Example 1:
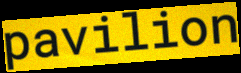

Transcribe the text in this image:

pavilion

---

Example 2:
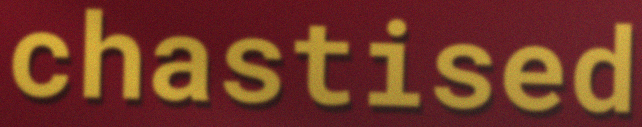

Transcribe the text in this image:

chastised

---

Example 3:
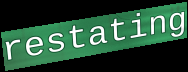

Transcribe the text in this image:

restating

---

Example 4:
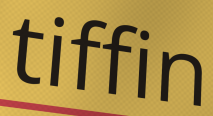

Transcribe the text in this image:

tiffin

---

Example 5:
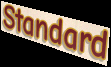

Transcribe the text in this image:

Standard